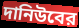
দানিউবের